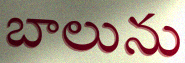
బాలును